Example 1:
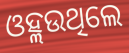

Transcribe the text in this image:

ଓହ୍ଲଉଥିଲେ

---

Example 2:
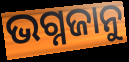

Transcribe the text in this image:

ଭଗ୍ନଜାନୁ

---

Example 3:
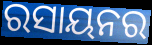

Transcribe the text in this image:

ରସାୟନର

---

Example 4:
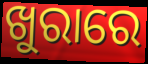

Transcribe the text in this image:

ଖୁରାରେ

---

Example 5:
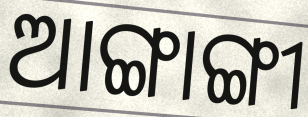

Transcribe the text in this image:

ଆଙ୍ଗାଙ୍ଗୀ